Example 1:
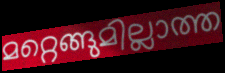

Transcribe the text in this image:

മറ്റെങ്ങുമില്ലാത്ത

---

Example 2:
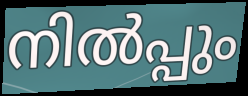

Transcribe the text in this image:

നിൽപ്പും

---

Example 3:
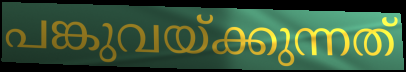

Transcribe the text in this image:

പങ്കുവയ്ക്കുന്നത്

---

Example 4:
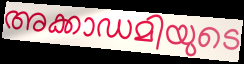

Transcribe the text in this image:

അക്കാഡമിയുടെ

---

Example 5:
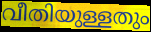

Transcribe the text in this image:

വീതിയുള്ളതും